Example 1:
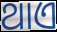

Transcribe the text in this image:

ଥାଏ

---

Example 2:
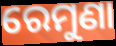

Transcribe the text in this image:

ରେମୁଣା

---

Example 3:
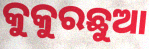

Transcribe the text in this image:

କୁକୁରଛୁଆ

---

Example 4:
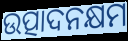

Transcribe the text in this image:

ଉତ୍ପାଦନକ୍ଷମ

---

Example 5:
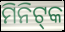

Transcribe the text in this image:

ମିନିଟ୍‌କ